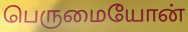
பெருமையோன்